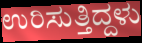
ಉರಿಸುತ್ತಿದ್ದಳು